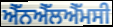
ਐੱਨਐੱਲਐੱਮਸੀ